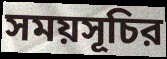
সময়সূচির